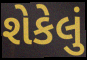
શેકેલું